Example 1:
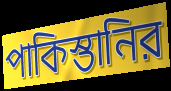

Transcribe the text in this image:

পাকিস্তানির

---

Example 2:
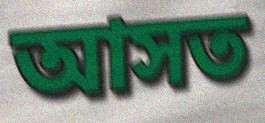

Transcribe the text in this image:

আসত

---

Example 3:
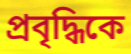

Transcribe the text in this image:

প্রবৃদ্ধিকে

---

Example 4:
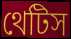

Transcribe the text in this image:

থেটিস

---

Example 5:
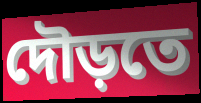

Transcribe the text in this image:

দৌড়তে